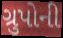
ગ્રુપોની